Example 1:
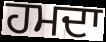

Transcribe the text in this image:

ਹਮਦਾ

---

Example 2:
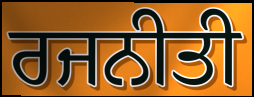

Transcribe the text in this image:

ਰਜਨੀਤੀ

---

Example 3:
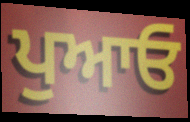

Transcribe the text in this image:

ਪੁਆਓ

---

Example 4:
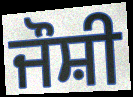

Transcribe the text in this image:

ਜੌਸ਼ੀ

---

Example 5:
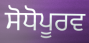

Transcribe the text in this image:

ਸੋਧੋਪੂਰਵ